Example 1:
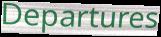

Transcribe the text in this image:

Departures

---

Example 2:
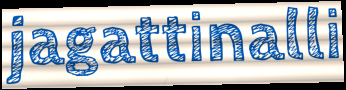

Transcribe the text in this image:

jagattinalli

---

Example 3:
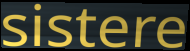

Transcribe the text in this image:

sistere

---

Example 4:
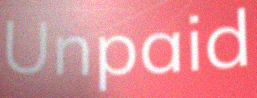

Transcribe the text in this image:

Unpaid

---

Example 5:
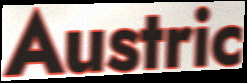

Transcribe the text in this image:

Austric